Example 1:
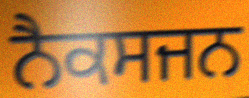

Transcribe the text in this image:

ਨੈਕਸਜਨ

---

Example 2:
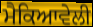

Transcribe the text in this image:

ਮੈਕਿਆਵੇਲੀ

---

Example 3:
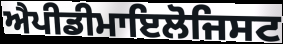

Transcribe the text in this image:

ਐਪੀਡੀਮਾਇਲੋਜਿਸਟ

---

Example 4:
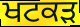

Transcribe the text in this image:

ਖਟਕੜ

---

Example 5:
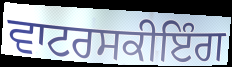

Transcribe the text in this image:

ਵਾਟਰਸਕੀਇੰਗ